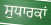
ਸੁਧਾਰਕਾਂ